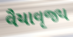
વૈયાવૃજ્ય